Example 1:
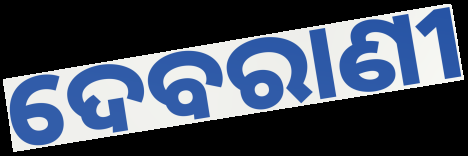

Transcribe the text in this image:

ଦେବରାଣୀ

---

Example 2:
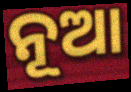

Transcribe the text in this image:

ନୂଆ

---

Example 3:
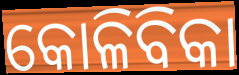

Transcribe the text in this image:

କୋଳିବିକା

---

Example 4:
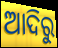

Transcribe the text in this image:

ଆଦିରୁ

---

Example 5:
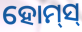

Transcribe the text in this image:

ହୋମ୍‌ସ୍